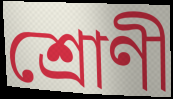
শ্রোণী